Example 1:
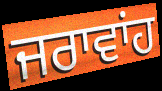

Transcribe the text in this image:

ਜਰਾਵਾਂਹ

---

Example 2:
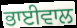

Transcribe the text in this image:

ਭਾਈਵਾਲ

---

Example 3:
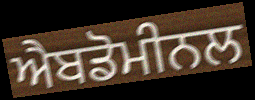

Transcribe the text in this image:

ਐਬਡੋਮੀਨਲ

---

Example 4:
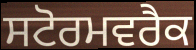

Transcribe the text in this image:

ਸਟੋਰਮਵਰੈਕ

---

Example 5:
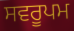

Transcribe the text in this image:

ਸਵਰੂਪਮ